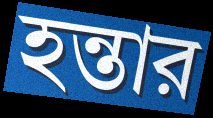
হন্তার